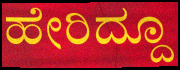
ಹೇರಿದ್ದೂ